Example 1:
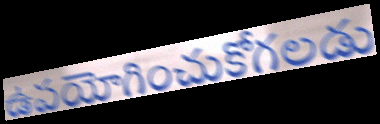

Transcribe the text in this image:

ఉపయోగించుకోగలడు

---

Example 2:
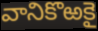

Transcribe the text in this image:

వానికొఱకై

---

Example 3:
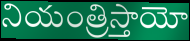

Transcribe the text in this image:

నియంత్రిస్తాయో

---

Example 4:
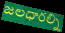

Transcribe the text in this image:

జలధారల్ని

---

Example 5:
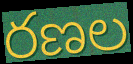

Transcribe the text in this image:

రణల